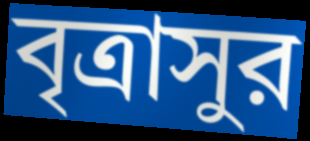
বৃত্রাসুর